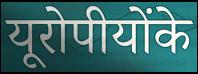
यूरोपीयोंके